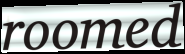
roomed